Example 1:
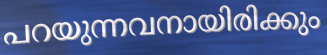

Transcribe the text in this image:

പറയുന്നവനായിരിക്കും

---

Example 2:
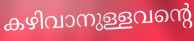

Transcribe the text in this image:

കഴിവാനുള്ളവന്റെ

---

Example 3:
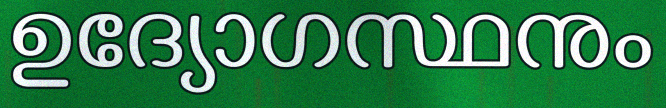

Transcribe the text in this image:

ഉദ്യോഗസ്ഥനും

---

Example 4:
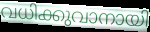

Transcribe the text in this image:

വധിക്കുവാനായി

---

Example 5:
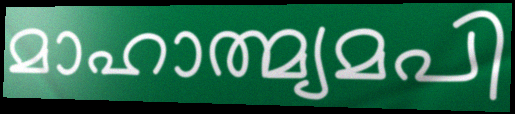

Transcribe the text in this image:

മാഹാത്മ്യമപി